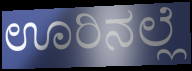
ಊರಿನಲ್ಲೆ